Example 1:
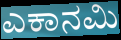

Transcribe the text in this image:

ಎಕಾನಮಿ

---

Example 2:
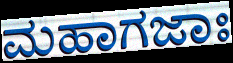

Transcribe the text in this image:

ಮಹಾಗಜಾಃ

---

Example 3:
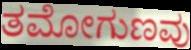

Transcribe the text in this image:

ತಮೋಗುಣವು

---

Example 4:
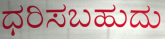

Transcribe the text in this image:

ಧರಿಸಬಹುದು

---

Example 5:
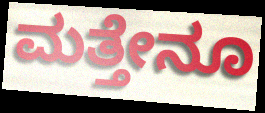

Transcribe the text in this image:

ಮತ್ತೇನೂ